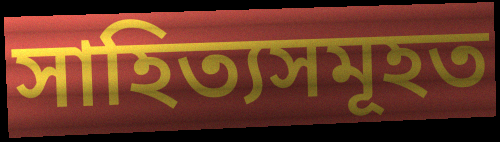
সাহিত্যসমূহত